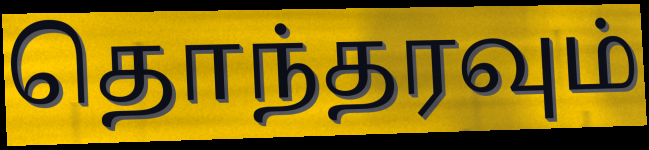
தொந்தரவும்